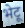
भेटू